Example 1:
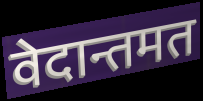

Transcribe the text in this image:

वेदान्तमत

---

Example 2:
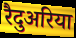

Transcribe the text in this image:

रैदुअरिया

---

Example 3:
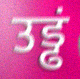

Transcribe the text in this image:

उड्ढं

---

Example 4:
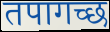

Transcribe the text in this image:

तपागच्छ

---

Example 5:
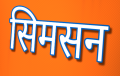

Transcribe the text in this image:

सिमसन